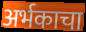
अर्भकाचा